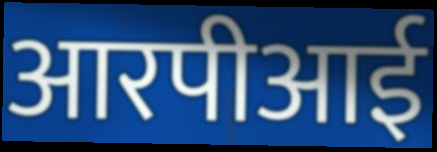
आरपीआई